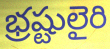
భ్రష్టులైరి